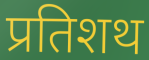
प्रतिशथ